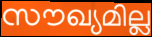
സൗഖ്യമില്ല